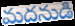
మదనుడి